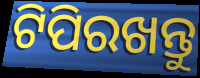
ଟିପିରଖନ୍ତୁ